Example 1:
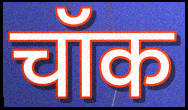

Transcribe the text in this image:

चॉक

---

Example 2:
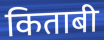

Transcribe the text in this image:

किताबी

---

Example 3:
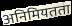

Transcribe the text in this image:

अनिमियतता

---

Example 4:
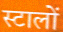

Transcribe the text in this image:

स्टालों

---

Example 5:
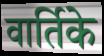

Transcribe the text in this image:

वार्तिके